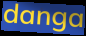
danga